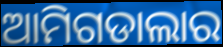
ଆମିଗଡାଲାର